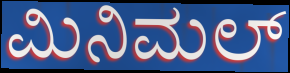
ಮಿನಿಮಲ್